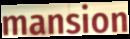
mansion